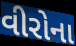
વીરોના